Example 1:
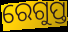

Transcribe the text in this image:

ରେଗୁପ୍ତ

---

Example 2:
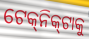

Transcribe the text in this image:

ଟେକ୍‌ନିକ୍‌ଟାକୁ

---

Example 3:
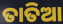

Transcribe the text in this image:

ତାତିଆ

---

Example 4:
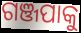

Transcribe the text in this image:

ଗଞ୍ଜପାକୁ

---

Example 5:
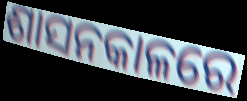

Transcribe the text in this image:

ଶାସନକାଳରେ